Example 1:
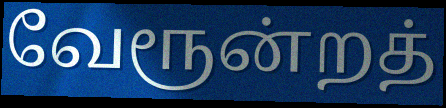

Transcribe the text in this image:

வேரூன்றத்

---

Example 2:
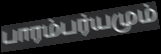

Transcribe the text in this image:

பாரம்பர்யமும்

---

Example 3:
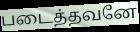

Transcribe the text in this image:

படைத்தவனே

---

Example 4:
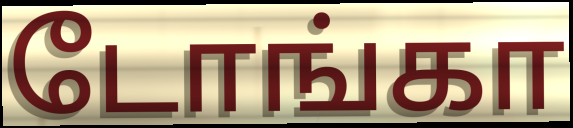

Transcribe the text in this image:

டோங்கா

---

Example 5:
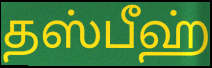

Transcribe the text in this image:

தஸ்பீஹ்